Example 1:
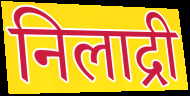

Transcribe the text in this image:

निलाद्री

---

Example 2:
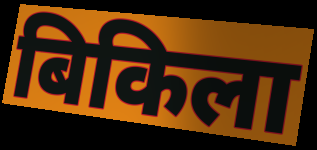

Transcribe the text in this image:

बिकिला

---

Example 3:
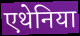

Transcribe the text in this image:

एथेनिया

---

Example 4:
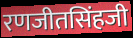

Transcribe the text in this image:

रणजीतसिंहजी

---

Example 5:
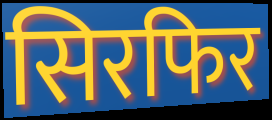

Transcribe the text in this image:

सिरफिर